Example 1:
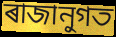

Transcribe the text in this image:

ৰাজানুগত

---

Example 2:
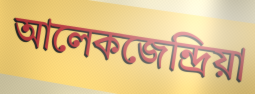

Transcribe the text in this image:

আলেকজেন্দ্ৰিয়া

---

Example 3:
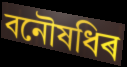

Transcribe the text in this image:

বনৌষধিৰ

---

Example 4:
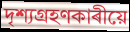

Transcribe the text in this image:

দৃশ্যগ্ৰহণকাৰীয়ে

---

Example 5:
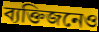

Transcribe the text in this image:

ব্যক্তিজনেও